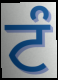
ਟੰ